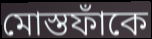
মোস্তফাঁকে